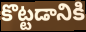
కొట్టడానికి